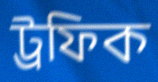
ট্রফিক